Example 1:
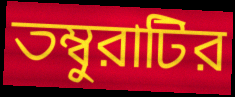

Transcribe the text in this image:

তম্বুরাটির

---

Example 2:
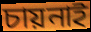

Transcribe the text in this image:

চায়নাই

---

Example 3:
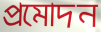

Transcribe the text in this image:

প্রমোদন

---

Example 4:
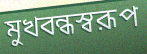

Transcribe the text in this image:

মুখবন্ধস্বরূপ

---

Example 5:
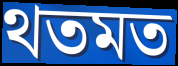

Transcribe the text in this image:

থতমত